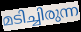
മടിച്ചിരുന്ന